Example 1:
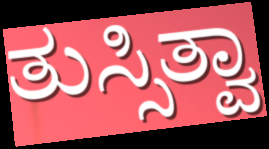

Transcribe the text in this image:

ತುಸ್ಸಿತ್ವಾ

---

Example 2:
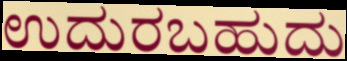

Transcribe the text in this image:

ಉದುರಬಹುದು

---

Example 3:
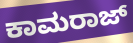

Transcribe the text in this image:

ಕಾಮರಾಜ್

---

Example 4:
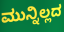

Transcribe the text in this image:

ಮುನ್ನಿಲ್ಲದ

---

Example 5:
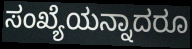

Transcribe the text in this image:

ಸಂಖ್ಯೆಯನ್ನಾದರೂ